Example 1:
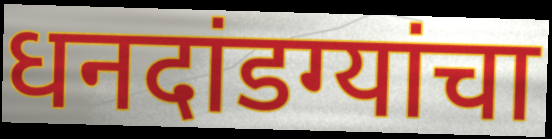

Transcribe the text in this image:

धनदांडग्यांचा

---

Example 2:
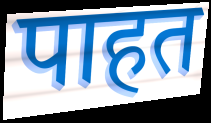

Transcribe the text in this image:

पाहत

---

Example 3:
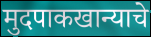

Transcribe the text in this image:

मुदपाकखान्याचे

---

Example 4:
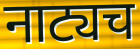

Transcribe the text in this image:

नाट्यच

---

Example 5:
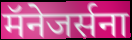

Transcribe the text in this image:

मॅनेजर्सना